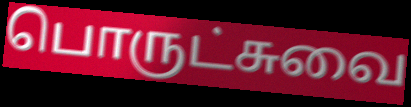
பொருட்சுவை